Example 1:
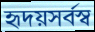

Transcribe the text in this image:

হৃদয়সর্বস্ব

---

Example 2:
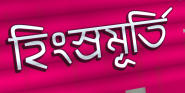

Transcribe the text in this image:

হিংস্রমূর্তি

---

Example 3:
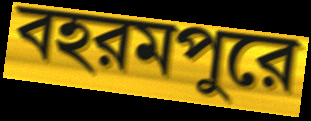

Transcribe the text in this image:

বহরমপুরে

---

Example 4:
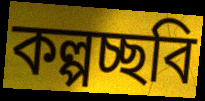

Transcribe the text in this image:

কল্পচ্ছবি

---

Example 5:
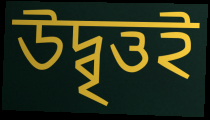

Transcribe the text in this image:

উদ্বৃত্তই